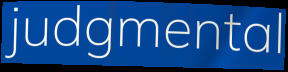
judgmental